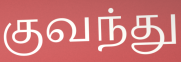
குவந்து